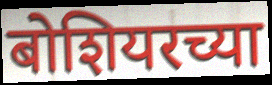
बोशियरच्या